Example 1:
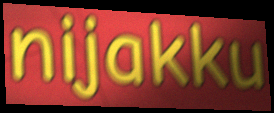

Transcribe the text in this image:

nijakku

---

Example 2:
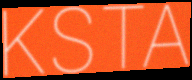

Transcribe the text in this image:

KSTA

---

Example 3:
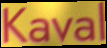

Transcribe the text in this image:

Kaval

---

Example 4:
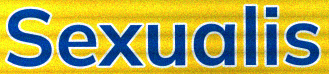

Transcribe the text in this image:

Sexualis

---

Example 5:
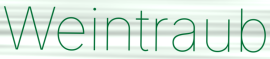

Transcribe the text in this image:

Weintraub